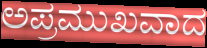
ಅಪ್ರಮುಖವಾದ